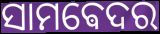
ସାମଵେଦର